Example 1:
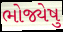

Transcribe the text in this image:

ભોજ્યેષુ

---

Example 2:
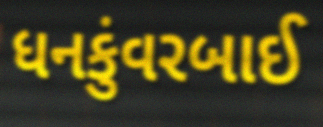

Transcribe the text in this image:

ધનકુંવરબાઈ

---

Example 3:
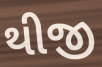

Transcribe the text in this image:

થીજી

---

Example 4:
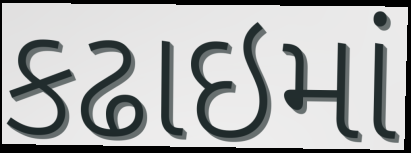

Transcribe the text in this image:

કઢાઇમાં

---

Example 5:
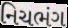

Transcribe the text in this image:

નિચભંગ